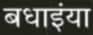
बधाइंया